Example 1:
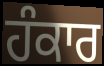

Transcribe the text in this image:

ਹੰਕਾਰ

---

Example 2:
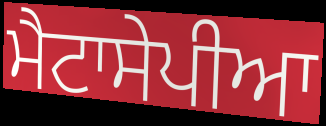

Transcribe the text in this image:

ਮੈਟਾਸੇਪੀਆ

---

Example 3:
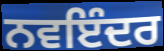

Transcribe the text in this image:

ਨਵਇੰਦਰ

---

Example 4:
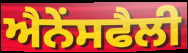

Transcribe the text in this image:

ਐਨੇਂਸਫੈਲੀ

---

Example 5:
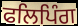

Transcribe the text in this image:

ਫਲਿਪਿੰਗ